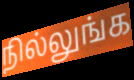
நில்லுங்க